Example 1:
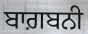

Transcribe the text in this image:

ਬਾਗ਼ਬਨੀ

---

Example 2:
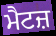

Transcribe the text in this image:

ਮੈਟਜ਼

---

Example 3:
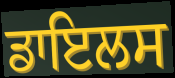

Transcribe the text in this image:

ਡਾਇਲਸ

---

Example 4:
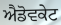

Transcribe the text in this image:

ਐਡੋਵਕੇਟ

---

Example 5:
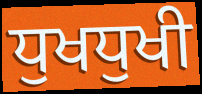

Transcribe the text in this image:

ਧੁਖਧੁਖੀ